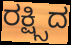
ರಕ್ಷ್ಸಿದ